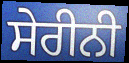
ਸੇਰੀਨੀ